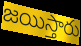
జయిస్తారు